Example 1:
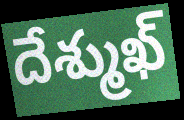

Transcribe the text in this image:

దేశ్ముఖ్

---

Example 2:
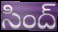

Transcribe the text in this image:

సింద్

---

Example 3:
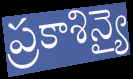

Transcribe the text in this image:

ప్రకాశిన్యై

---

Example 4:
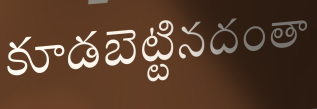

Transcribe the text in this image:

కూడబెట్టినదంతా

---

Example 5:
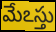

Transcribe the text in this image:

మేఽస్తు